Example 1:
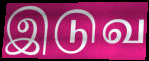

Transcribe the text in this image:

இடுவ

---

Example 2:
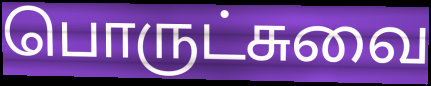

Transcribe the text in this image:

பொருட்சுவை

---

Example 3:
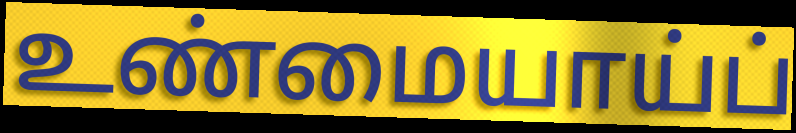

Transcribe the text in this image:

உண்மையாய்ப்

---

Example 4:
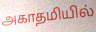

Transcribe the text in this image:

அகாதமியில்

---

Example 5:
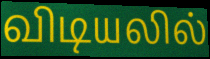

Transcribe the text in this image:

விடியலில்